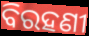
ବିରହଣୀ